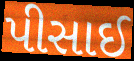
પીસાઈ